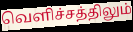
வெளிச்சத்திலும்